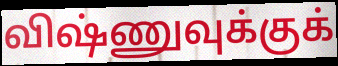
விஷ்ணுவுக்குக்